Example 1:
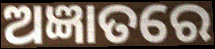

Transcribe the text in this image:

ଅଜ୍ଞାତରେ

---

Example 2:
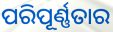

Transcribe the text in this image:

ପରିପୂର୍ଣ୍ଣତାର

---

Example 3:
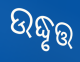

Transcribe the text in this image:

ଉଦ୍ଧୃତ୍ତ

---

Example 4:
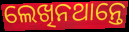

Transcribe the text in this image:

ଲେଖିନଥାନ୍ତେ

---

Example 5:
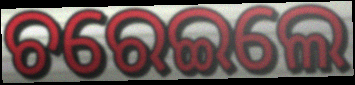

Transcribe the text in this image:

ଚରେଇଲେ